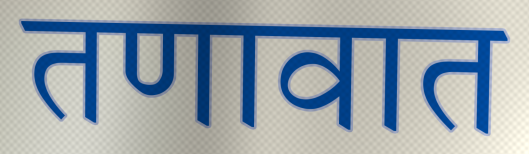
तणावात